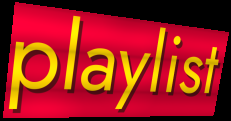
playlist